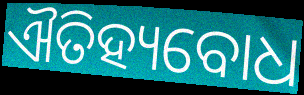
ଐତିହ୍ୟବୋଧ